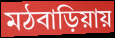
মঠবাড়িয়ায়